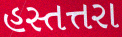
હસ્તત્તરા